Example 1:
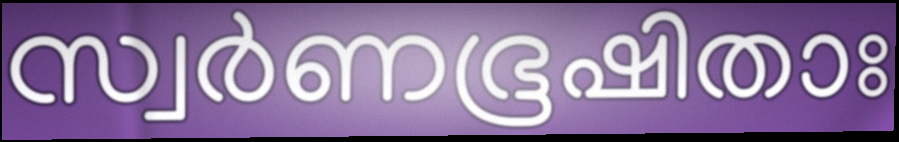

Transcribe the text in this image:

സ്വർണഭൂഷിതാഃ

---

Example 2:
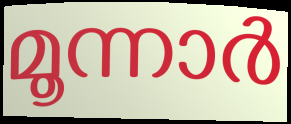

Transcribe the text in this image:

മൂന്നാർ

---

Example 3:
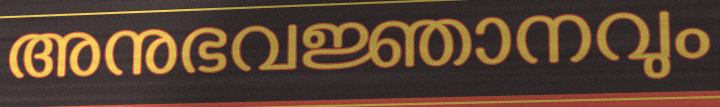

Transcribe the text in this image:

അനുഭവജ്ഞാനവും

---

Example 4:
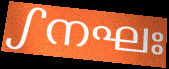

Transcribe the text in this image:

ഽനഘഃ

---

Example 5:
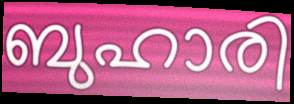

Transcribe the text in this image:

ബുഹാരി